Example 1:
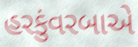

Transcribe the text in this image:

હરકુંવરબાએ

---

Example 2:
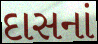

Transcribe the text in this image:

દાસનાં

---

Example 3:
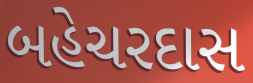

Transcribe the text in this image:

બહેચરદાસ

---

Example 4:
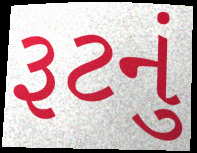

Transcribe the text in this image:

રૂટનું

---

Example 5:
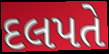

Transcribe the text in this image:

દલપતે